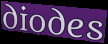
diodes